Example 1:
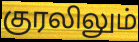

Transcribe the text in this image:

குரலிலும்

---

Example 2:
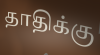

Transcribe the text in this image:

தாதிக்கு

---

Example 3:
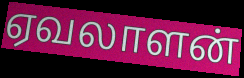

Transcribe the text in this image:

ஏவலாளன்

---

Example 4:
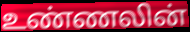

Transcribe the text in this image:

உண்ணலின்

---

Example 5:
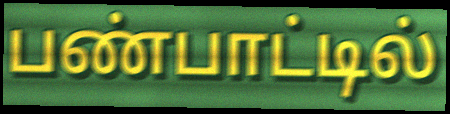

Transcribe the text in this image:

பண்பாட்டில்